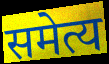
समेत्य